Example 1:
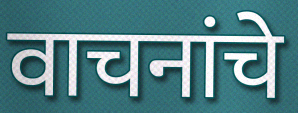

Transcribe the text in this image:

वाचनांचे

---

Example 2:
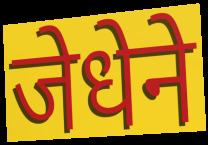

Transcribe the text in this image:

जेधेने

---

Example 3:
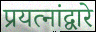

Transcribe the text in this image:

प्रयत्नांद्वारे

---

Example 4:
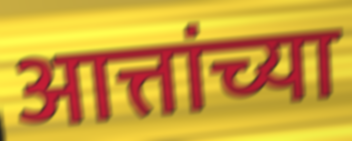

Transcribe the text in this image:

आत्तांच्या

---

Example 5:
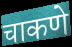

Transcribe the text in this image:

चाकणे